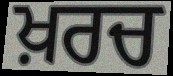
ਖ਼ਰਚ